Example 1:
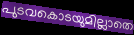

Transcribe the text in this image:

പുടവകൊടയുമില്ലാതെ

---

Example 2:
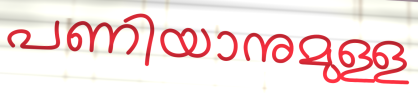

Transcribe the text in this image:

പണിയാനുമുള്ള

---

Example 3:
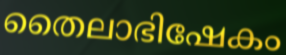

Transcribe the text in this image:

തൈലാഭിഷേകം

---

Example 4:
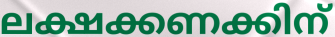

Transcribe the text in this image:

ലക്ഷക്കണക്കിന്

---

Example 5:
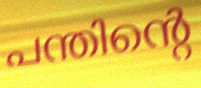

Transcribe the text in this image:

പന്തിന്റെ